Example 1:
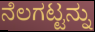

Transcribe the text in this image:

ನೆಲಗಟ್ಟನ್ನು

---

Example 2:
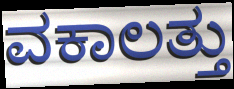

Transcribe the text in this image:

ವಕಾಲತ್ತು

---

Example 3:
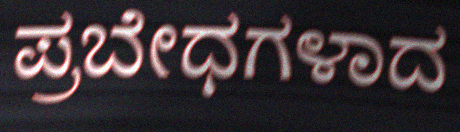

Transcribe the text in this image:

ಪ್ರಬೇಧಗಳಾದ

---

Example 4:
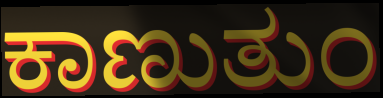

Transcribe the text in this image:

ಕಾಣುತುಂ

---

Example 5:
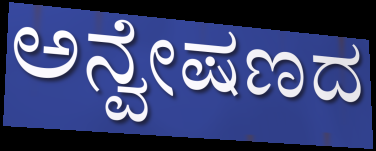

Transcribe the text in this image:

ಅನ್ವೇಷಣದ